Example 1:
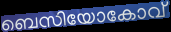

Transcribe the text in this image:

ബെസിയോകോവ്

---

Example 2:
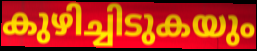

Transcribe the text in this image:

കുഴിച്ചിടുകയും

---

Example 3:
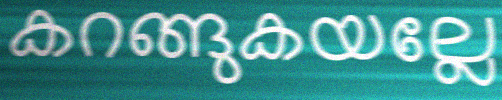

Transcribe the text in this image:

കറങ്ങുകയല്ലേ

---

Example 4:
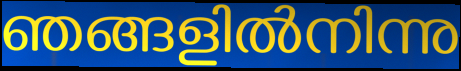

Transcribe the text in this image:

ഞങ്ങളിൽനിന്നു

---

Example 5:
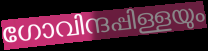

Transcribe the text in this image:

ഗോവിന്ദപ്പിള്ളയും